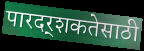
पारदर्शकतेसाठी